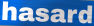
hasard